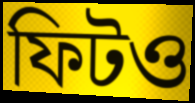
ফিটও